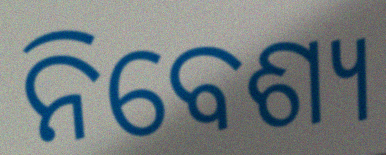
ନିବେଶ୍ୟ